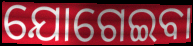
ଯୋଗେଇବା